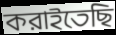
করাইতেছি